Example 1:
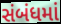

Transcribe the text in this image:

સંબંધમાં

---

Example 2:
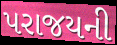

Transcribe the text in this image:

પરાજયની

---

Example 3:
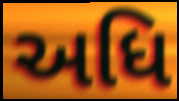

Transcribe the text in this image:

અધિ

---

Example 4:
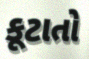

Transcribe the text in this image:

કૂટાતો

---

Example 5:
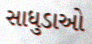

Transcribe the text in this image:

સાધુડાઓ